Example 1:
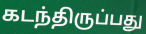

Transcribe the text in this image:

கடந்திருப்பது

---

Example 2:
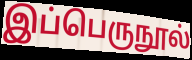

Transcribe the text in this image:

இப்பெருநூல்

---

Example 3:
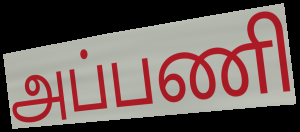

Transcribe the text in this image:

அப்பணி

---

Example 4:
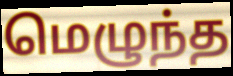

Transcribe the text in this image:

மெழுந்த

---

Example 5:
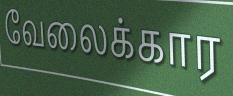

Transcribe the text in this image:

வேலைக்கார